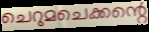
ചെറുമചെക്കന്റെ